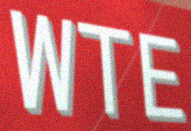
WTE